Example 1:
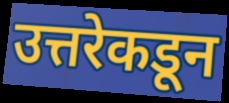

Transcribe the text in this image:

उत्तरेकडून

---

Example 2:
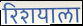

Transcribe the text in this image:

रिशयाला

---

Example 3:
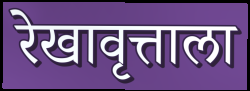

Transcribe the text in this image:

रेखावृत्ताला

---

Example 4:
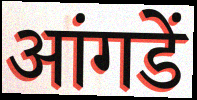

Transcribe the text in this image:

आंगडें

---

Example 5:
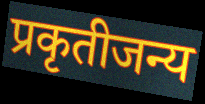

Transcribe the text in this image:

प्रकृतीजन्य